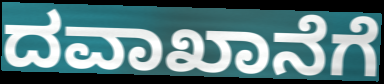
ದವಾಖಾನೆಗೆ